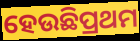
ହେଉଛିପ୍ରଥମ